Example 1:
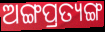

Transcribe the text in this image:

ଅଙ୍ଗପ୍ରତ୍ୟଙ୍ଗ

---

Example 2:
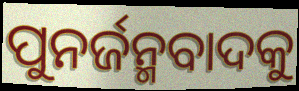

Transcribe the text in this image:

ପୁନର୍ଜନ୍ମବାଦକୁ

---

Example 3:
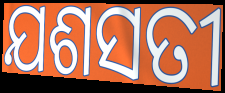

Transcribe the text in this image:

ଯଶସତୀ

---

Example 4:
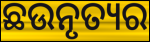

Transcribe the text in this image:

ଛଉନୃତ୍ୟର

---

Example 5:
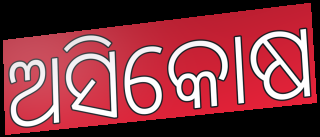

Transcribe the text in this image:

ଅସିକୋଷ